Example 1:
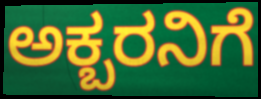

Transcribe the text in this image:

ಅಕ್ಬರನಿಗೆ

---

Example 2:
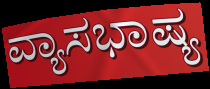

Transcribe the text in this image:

ವ್ಯಾಸಭಾಷ್ಯ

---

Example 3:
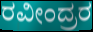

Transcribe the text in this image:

ರವೀಂದ್ರರ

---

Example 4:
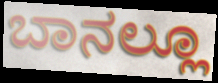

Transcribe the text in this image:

ಬಾನಲ್ಲೂ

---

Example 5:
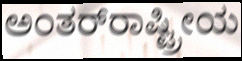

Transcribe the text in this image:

ಅಂತರ್‌ರಾಷ್ಟ್ರೀಯ